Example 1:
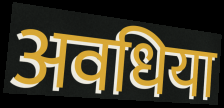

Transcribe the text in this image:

अवधिया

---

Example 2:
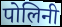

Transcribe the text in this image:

पोलिनी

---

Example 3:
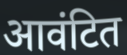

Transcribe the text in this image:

आवंटित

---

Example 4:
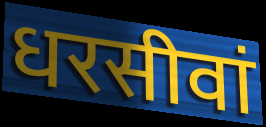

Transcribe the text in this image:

धरसीवां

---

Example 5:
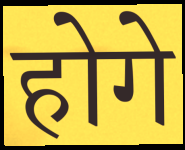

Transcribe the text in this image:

होगे